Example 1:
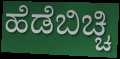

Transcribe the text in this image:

ಹೆಡೆಬಿಚ್ಚಿ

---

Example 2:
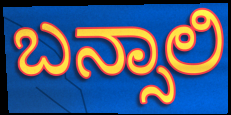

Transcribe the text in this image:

ಬನ್ಸಾಲಿ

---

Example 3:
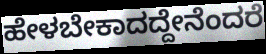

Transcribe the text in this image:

ಹೇಳಬೇಕಾದದ್ದೇನೆಂದರೆ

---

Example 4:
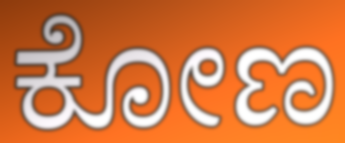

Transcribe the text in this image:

ಕೋಣ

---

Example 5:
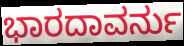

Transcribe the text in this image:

ಭಾರದಾವರ್ನು